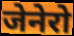
जेनेरो